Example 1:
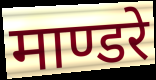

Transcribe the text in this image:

माण्डरे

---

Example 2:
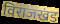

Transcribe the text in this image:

विराजखंड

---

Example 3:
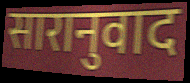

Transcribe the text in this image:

सारानुवाद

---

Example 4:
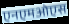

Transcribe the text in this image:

एनएमओएस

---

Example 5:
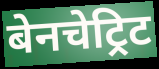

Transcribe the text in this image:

बेनचेट्रिट